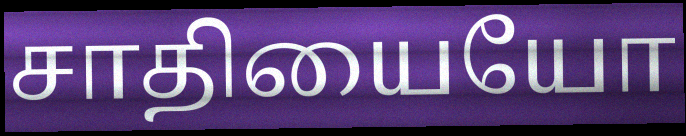
சாதியையோ